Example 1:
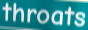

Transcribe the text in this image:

throats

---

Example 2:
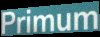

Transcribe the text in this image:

Primum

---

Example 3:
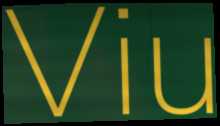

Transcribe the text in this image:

Viu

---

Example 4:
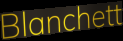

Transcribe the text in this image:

Blanchett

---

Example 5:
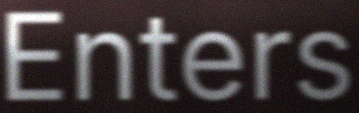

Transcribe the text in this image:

Enters